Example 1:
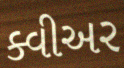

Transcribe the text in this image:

ક્વીઅર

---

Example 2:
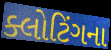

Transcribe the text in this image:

ક્લોટિંગના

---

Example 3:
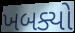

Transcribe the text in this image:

ખબક્યો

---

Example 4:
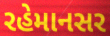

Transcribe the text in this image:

રહેમાનસર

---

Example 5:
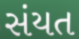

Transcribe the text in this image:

સંયત